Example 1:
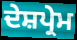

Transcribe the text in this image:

ਦੇਸ਼ਪ੍ਰੇਮ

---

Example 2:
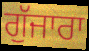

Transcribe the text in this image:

ਗੁੱਜਾਰਾ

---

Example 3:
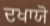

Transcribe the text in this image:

ਦਖਾਯੋ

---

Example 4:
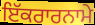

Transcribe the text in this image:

ਇੱਕਰਾਰਨਾਮੇ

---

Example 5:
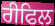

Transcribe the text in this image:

ਰੀਫਿਲ